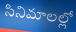
సినిమాలల్లో